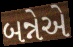
બન્નેએ